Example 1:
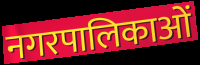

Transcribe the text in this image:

नगरपालिकाओं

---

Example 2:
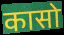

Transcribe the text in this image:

कासो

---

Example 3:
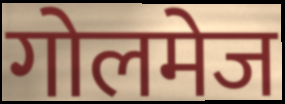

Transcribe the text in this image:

गोलमेज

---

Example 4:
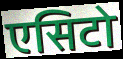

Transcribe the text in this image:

एसिटो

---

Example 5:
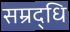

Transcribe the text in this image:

सम्रद्धि